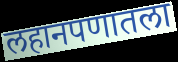
लहानपणातला